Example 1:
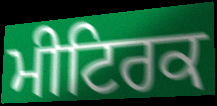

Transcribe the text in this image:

ਮੀਟਿਰਕ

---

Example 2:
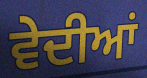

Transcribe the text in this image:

ਵੇਦੀਆਂ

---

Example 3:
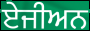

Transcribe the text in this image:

ਏਜੀਅਨ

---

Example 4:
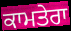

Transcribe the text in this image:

ਕਾਮਤੇਰਾ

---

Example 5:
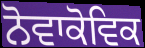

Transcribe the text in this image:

ਨੋਵਾਕੋਵਿਕ